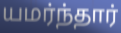
யமர்ந்தார்